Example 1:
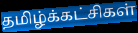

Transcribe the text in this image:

தமிழ்க்கட்சிகள்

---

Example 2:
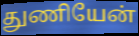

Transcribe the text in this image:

துணியேன்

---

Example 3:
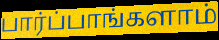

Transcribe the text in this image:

பார்ப்பாங்களாம்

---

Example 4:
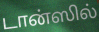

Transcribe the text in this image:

டான்ஸில்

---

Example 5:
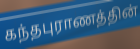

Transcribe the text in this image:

கந்தபுராணத்தின்